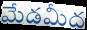
మేడమీద